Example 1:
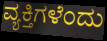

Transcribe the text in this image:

ವ್ಯಕ್ತಿಗಳೆಂದು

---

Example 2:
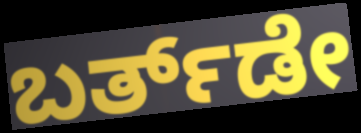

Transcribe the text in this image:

ಬರ್ತ್‌ಡೇ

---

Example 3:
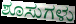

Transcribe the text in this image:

ಶೂಸುಗಳು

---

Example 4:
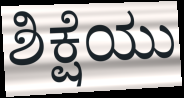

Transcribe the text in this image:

ಶಿಕ್ಷೆಯು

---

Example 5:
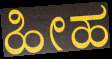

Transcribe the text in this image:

ಹೀಹ